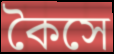
কৈসে